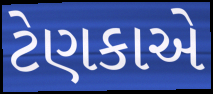
ટેણકાએ